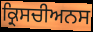
ਕ੍ਰਿਸਚੀਅਨਸ